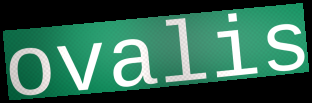
ovalis